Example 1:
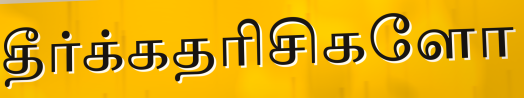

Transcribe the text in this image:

தீர்க்கதரிசிகளோ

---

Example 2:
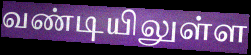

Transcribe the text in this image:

வண்டியிலுள்ள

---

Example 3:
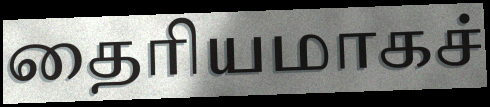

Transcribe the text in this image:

தைரியமாகச்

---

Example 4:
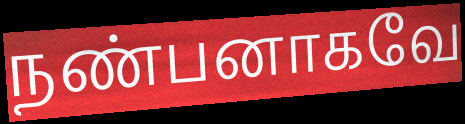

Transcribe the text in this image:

நண்பனாகவே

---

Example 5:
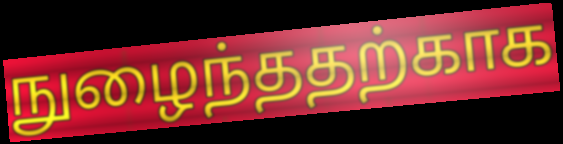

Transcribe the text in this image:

நுழைந்ததற்காக